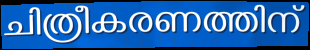
ചിത്രീകരണത്തിന്